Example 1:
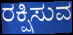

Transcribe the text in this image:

ರಕ್ಷಿಸುವ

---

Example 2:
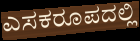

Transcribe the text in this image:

ಎಸಕರೂಪದಲ್ಲಿ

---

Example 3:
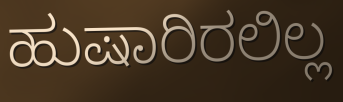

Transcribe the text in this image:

ಹುಷಾರಿರಲಿಲ್ಲ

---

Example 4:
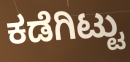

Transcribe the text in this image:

ಕಡೆಗಿಟ್ಟು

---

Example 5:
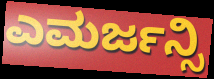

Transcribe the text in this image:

ಎಮರ್ಜನ್ಸಿ